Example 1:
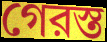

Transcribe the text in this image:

গেরস্ত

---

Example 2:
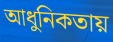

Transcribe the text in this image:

আধুনিকতায়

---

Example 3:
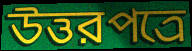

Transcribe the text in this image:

উত্তরপত্রে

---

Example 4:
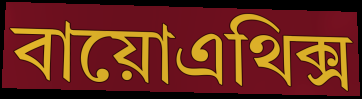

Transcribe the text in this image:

বায়োএথিক্স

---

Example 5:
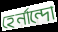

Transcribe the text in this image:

হের্নান্দো